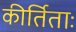
कीर्तिताः